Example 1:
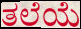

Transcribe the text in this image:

ತಲೆಯೆ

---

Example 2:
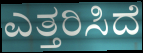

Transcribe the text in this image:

ಎತ್ತರಿಸಿದೆ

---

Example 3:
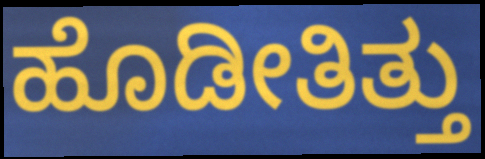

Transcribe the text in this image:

ಹೊಡೀತಿತ್ತು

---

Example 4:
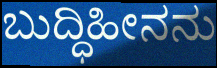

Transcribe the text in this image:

ಬುದ್ಧಿಹೀನನು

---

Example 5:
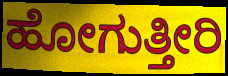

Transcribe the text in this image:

ಹೋಗುತ್ತೀರಿ